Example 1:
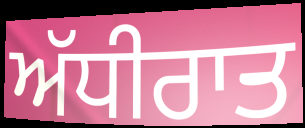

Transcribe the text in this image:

ਅੱਧੀਰਾਤ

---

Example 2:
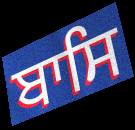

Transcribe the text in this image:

ਬਾਸਿ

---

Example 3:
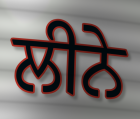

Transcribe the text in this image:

ਲੀਨੇ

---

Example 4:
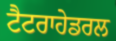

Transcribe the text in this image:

ਟੈਟਰਾਹੇਡਰਲ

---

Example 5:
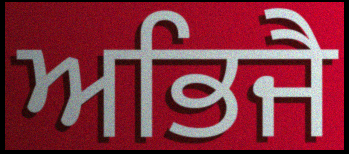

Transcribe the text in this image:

ਅਭਿਜੈ